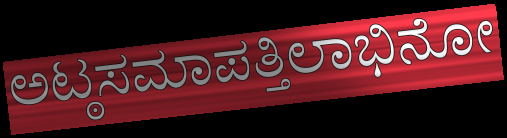
ಅಟ್ಠಸಮಾಪತ್ತಿಲಾಭಿನೋ